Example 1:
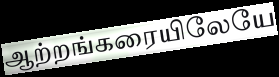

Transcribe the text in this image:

ஆற்றங்கரையிலேயே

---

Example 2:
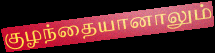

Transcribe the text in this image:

குழந்தையானாலும்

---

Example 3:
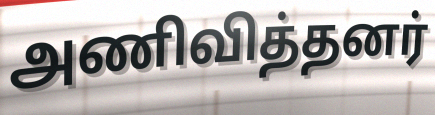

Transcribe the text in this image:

அணிவித்தனர்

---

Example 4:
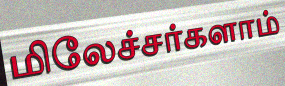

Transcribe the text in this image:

மிலேச்சர்களாம்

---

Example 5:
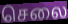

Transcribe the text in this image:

செலை